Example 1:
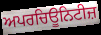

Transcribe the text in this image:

ਅਪਰਚਿਊਨਿਟੀਜ਼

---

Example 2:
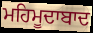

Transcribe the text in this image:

ਮਹਿਮੂਦਾਬਾਦ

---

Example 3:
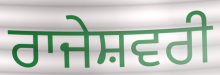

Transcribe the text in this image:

ਰਾਜੇਸ਼ਵਰੀ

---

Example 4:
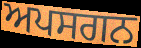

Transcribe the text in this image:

ਅਪਸਗਨ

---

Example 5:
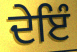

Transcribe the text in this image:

ਦੇਇੰ